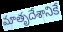
మాతృదేశానికే